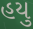
હયુ